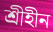
শ্রীহীন